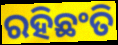
ରହିଛଂତି